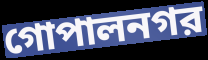
গোপালনগর